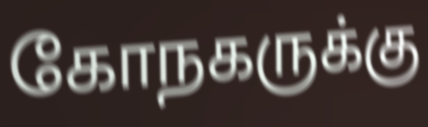
கோநகருக்கு